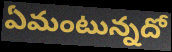
ఏమంటున్నదో